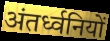
अंतर्ध्वनियों